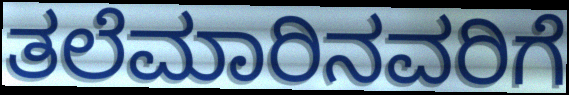
ತಲೆಮಾರಿನವರಿಗೆ